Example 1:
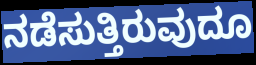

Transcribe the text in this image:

ನಡೆಸುತ್ತಿರುವುದೂ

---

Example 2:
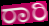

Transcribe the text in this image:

ರಾರಿ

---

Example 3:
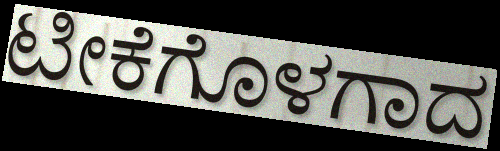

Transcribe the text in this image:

ಟೀಕೆಗೊಳಗಾದ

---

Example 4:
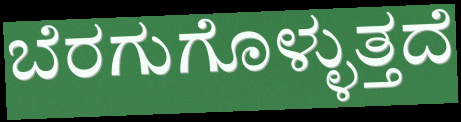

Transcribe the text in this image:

ಬೆರಗುಗೊಳ್ಳುತ್ತದೆ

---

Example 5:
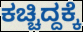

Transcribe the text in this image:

ಕಚ್ಚಿದ್ದಕ್ಕೆ